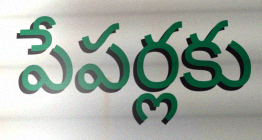
పేపర్లకు